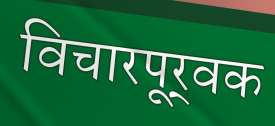
विचारपूर्वक